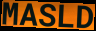
MASLD